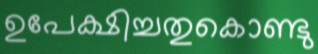
ഉപേക്ഷിച്ചതുകൊണ്ടു